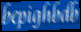
bepighbdb